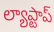
ల్యాప్టాప్